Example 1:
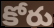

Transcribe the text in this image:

కోరు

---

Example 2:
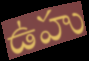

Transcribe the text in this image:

ఉహు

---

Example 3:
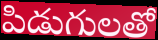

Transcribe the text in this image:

పిడుగులతో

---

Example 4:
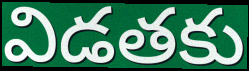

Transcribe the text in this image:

విడతకు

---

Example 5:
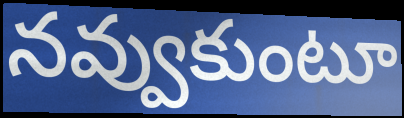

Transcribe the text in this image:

నవ్వుకుంటూ